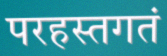
परहस्तगतं